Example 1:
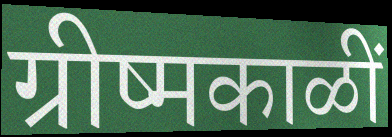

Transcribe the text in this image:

ग्रीष्मकाळीं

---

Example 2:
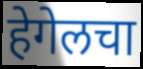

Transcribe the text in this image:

हेगेलचा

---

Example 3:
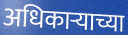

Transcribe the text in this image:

अधिकाऱ्याच्या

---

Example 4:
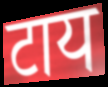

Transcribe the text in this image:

टाय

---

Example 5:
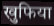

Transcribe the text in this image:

खुफिया